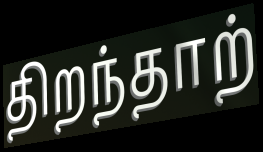
திறந்தாற்